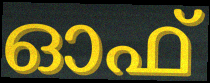
ഓഫ്